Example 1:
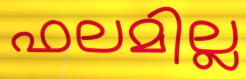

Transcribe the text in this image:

ഫലമില്ല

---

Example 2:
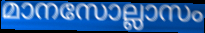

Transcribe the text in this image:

മാനസോല്ലാസം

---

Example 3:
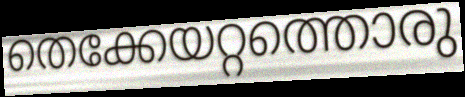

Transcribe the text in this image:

തെക്കേയറ്റത്തൊരു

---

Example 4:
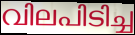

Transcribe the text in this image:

വിലപിടിച്ച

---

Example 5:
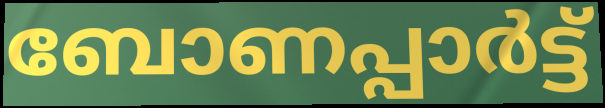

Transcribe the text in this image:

ബോണപ്പാർട്ട്